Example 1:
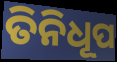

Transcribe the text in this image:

ତିନିଧୂପ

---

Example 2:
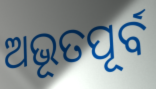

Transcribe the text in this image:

ଅଭୂତପୂର୍ବ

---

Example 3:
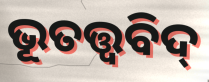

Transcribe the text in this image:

ଭୂତତ୍ତ୍ବବିଦ୍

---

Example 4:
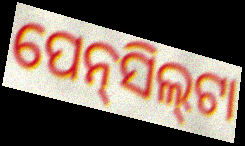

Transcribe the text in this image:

ପେନ୍‌ସିଲ୍‍ଟା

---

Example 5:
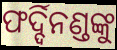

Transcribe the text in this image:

ଫର୍ଦ୍ଦିନଣ୍ଡଙ୍କୁ